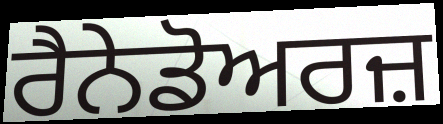
ਰੈਨੇਡੋਅਰਜ਼